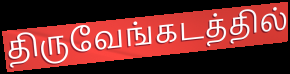
திருவேங்கடத்தில்